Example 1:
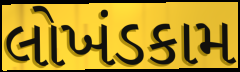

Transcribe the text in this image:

લોખંડકામ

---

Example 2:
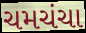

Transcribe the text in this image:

ચમચંચા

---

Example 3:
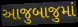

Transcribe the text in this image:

આજુબાજુમાં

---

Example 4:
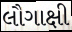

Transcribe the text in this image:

લૌગાક્ષી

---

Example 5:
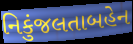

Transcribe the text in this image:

નિકુંજલતાબહેન